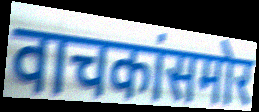
वाचकांसमोर